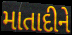
માતાદીને